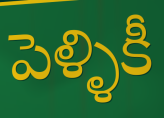
పెళ్ళికీ